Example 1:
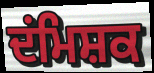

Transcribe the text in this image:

ਦਂਮਿਸ਼ਕ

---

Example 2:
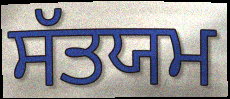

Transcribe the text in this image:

ਸੱਤਯਮ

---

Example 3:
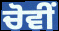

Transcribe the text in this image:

ਚੋਵੀਂ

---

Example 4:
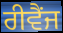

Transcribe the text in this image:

ਰੀਵੈਂਜ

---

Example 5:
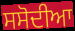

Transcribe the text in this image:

ਸਸੋਦੀਆ